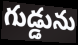
గుడ్డును